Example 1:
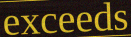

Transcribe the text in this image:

exceeds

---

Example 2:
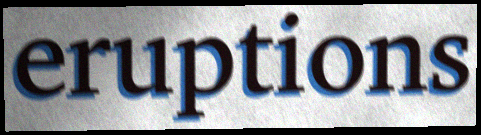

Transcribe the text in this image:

eruptions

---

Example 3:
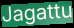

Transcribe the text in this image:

Jagattu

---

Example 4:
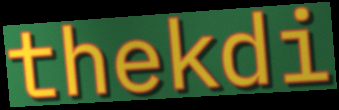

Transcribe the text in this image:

thekdi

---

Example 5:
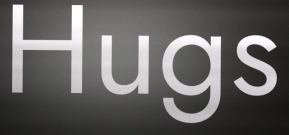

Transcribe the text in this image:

Hugs